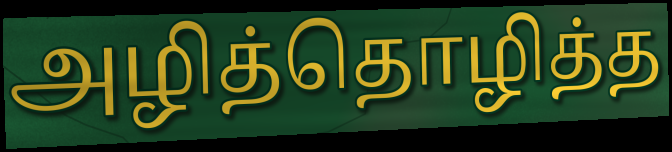
அழித்தொழித்த